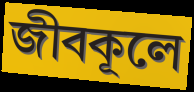
জীবকূলে